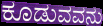
ಕೂಡುವವನು